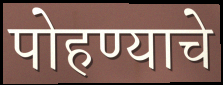
पोहण्याचे